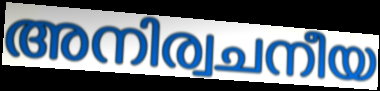
അനിര്വചനീയ